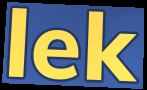
lek